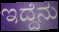
ಇದ್ದೆನು